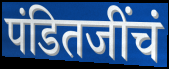
पंडितजींचं